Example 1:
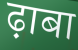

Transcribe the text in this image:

ढ़ाबा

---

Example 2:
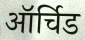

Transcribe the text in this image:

ऑर्चिड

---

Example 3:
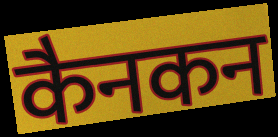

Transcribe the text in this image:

कैनकन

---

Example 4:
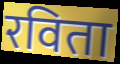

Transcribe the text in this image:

रविता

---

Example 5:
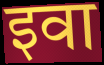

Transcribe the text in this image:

इवा